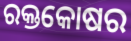
ରକ୍ତକୋଷର